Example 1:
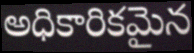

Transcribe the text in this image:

అధికారికమైన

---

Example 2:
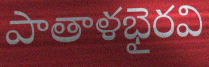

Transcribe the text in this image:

పాతాళభైరవి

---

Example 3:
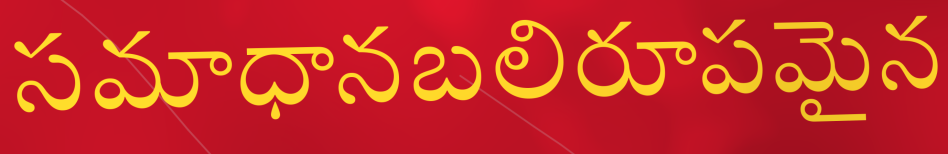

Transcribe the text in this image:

సమాధానబలిరూపమైన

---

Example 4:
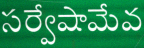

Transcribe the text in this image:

సర్వేషామేవ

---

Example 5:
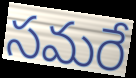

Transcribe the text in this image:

సమరే